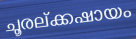
ചൂരല്ക്കഷായം